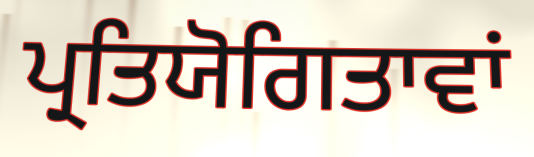
ਪ੍ਰਤਿਯੋਗਿਤਾਵਾਂ